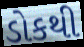
ડોકથી